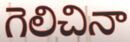
గెలిచినా